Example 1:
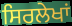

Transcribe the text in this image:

ਸਿਰਲੇਖਾਂ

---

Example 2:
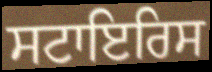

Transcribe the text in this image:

ਸਟਾਇਰਿਸ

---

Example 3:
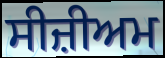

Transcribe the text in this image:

ਸੀਜ਼ੀਅਮ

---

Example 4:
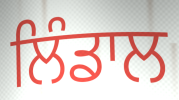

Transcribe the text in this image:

ਲਿੰਡਾਲ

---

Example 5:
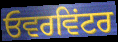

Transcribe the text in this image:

ਓਵਰਵਿਂਟਰ